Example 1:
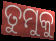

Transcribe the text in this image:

ତୁମୁକୁ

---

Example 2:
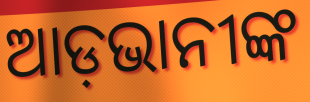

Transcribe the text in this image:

ଆଡ଼ଭାନୀଙ୍କ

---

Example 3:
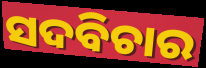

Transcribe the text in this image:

ସଦବିଚାର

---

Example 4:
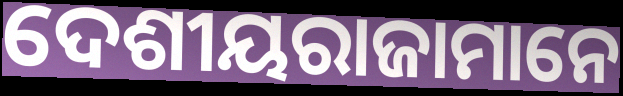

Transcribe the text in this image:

ଦେଶୀୟରାଜାମାନେ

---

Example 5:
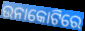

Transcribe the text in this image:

ଉନାକୋଟିରେ